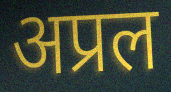
अप्रल